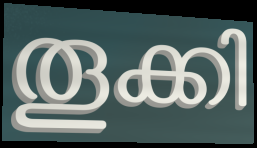
തൂക്കി